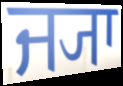
ਜ੍ਯਾ